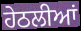
ਹੇਠਲੀਆਂ